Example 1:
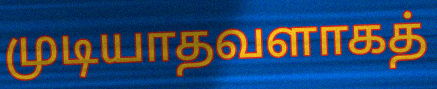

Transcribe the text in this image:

முடியாதவளாகத்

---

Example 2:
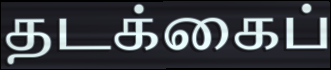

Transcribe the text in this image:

தடக்கைப்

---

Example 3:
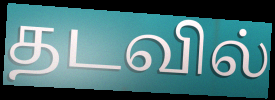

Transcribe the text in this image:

தடவில்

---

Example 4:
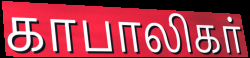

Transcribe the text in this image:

காபாலிகர்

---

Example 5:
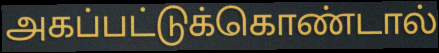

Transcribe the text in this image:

அகப்பட்டுக்கொண்டால்